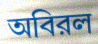
অবিরল